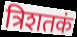
त्रिशतकं